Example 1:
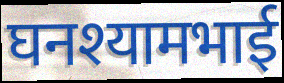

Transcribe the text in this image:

घनश्यामभाई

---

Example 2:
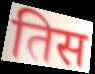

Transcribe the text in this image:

तिस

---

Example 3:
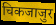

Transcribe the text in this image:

चिकजाजुर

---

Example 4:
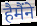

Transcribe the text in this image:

हैमैंने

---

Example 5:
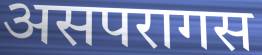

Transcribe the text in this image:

असपरागस